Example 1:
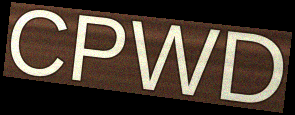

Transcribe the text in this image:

CPWD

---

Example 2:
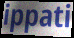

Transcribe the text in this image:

ippati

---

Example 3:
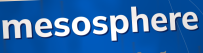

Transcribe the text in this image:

mesosphere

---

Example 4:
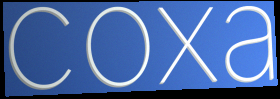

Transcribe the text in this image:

coxa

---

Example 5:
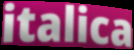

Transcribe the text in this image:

italica